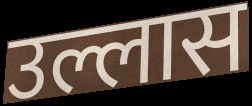
उल्‍लास